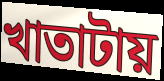
খাতাটায়